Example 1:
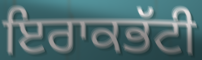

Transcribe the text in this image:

ਇਰਾਕਭੱਟੀ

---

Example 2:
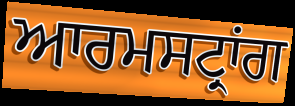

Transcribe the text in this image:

ਆਰਮਸਟ੍ਰਾਂਗ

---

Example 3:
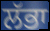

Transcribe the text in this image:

ਲੱਭਾ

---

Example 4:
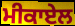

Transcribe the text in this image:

ਮੀਕਾਏਲ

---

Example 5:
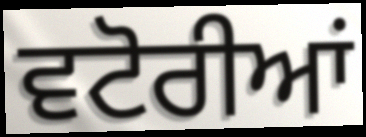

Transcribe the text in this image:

ਵਟੋਰੀਆਂ